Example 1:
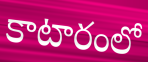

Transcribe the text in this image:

కాటారంలో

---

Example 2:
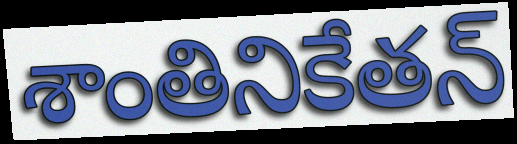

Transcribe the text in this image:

శాంతినికేతన్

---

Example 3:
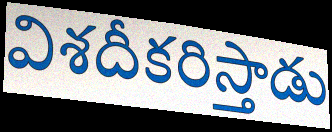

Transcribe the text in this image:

విశదీకరిస్తాడు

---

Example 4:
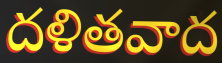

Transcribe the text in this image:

దళితవాద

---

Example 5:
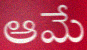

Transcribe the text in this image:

ఆమే